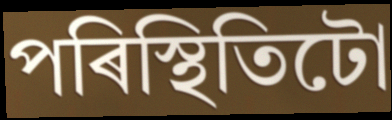
পৰিস্থিতিটো